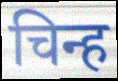
चिन्ह